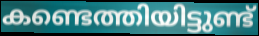
കണ്ടെത്തിയിട്ടുണ്ട്